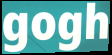
gogh